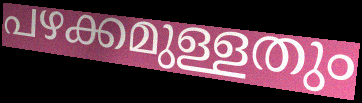
പഴക്കമുള്ളതും